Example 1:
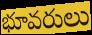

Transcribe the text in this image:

భూవరులు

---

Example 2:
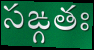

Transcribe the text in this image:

సఙ్గతః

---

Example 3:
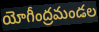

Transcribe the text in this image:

యోగీంద్రమండల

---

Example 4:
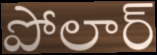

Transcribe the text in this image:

పోలార్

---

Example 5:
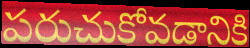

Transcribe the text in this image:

పరుచుకోవడానికి